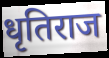
धृतिराज